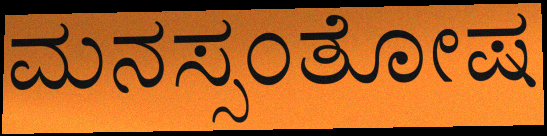
ಮನಸ್ಸಂತೋಷ